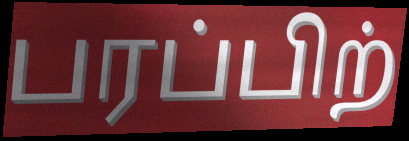
பரப்பிற்